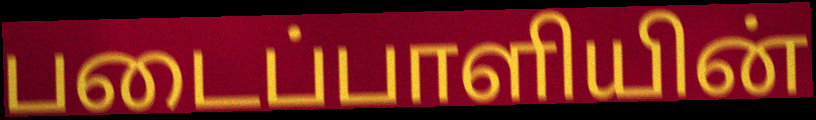
படைப்பாளியின்